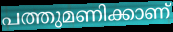
പത്തുമണിക്കാണ്